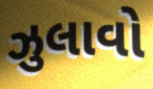
ઝુલાવો